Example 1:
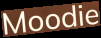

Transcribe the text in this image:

Moodie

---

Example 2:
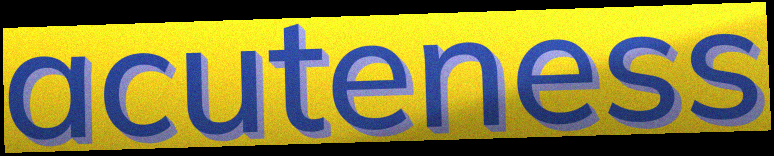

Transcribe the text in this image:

acuteness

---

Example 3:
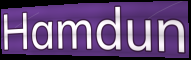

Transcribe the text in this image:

Hamdun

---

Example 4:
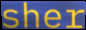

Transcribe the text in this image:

sher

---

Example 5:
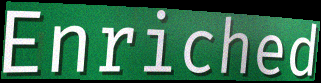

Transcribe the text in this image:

Enriched